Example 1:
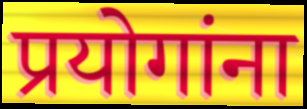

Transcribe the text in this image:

प्रयोगांना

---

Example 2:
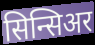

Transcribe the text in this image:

सिन्सिअर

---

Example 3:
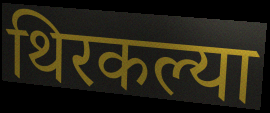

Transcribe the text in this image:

थिरकल्या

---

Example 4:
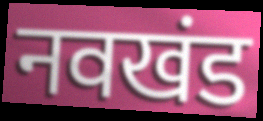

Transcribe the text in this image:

नवखंड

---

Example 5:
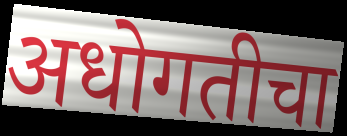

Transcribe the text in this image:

अधोगतीचा